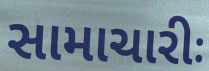
સામાચારીઃ